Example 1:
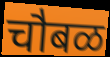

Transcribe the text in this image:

चौबळ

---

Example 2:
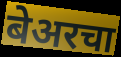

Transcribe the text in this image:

बेअरचा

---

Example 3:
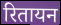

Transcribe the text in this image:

रितायन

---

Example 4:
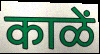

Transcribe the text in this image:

काळें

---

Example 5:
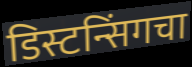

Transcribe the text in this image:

डिस्टन्सिंगचा